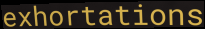
exhortations